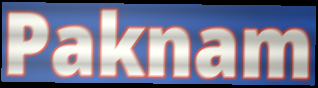
Paknam